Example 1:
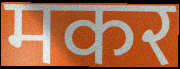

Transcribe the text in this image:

मकर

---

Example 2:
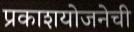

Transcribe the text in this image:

प्रकाशयोजनेची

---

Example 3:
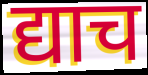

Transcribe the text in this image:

द्याच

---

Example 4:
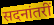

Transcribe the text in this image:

सदनांतरीं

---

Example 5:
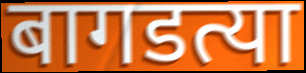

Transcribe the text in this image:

बागडत्या